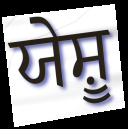
ਯੇਸ਼ੂ